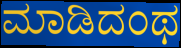
ಮಾಡಿದಂಥ